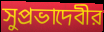
সুপ্রভাদেবীর